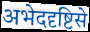
अभेददृष्टिसे